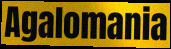
Agalomania